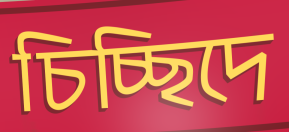
চিচ্ছিদে